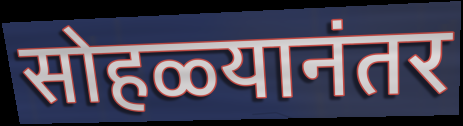
सोहळ्यानंतर